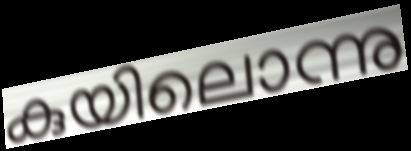
കുയിലൊന്നു